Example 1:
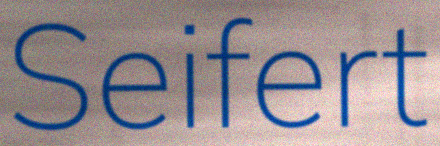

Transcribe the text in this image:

Seifert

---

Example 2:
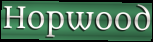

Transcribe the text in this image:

Hopwood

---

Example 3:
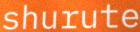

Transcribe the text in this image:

shurute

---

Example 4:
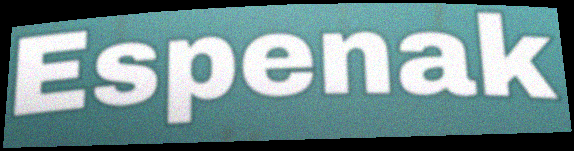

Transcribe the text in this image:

Espenak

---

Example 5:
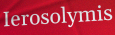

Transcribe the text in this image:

Ierosolymis